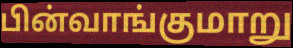
பின்வாங்குமாறு